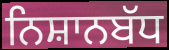
ਨਿਸ਼ਾਨਬੱਧ